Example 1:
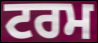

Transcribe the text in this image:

ਟਰਮ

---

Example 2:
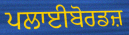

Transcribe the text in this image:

ਪਲਾਈਬੋਰਡਜ਼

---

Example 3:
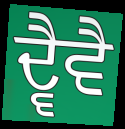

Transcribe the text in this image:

ਦ੍ਵੈਵੈ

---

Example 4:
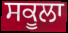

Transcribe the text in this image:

ਸਕੂਲਾ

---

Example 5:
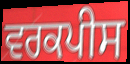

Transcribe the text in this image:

ਵਰਕਪੀਸ